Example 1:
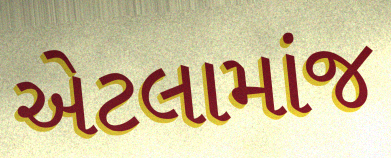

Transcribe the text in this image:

એટલામાંજ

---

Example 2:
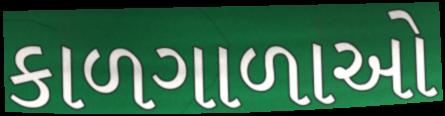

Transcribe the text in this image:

કાળગાળાઓ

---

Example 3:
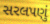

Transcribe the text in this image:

સરલપણું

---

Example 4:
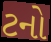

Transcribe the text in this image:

ટનો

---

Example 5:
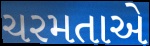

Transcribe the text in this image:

ચરમતાએ